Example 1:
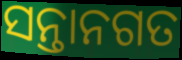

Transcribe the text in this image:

ସନ୍ତାନଗତ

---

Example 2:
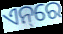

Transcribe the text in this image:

ଏନ୍‌ରେ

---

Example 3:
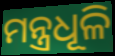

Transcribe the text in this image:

ମନ୍ତ୍ରଧୂଳି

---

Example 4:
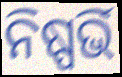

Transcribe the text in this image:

ନିଷ୍ପର୍ଭି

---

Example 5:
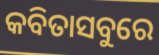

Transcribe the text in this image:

କବିତାସବୁରେ